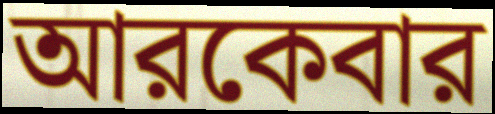
আরকেবার